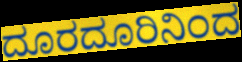
ದೂರದೂರಿನಿಂದ